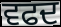
ਵਫਦ